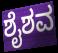
ಶೈಶವ